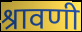
श्रावणी